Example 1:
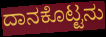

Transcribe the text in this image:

ದಾನಕೊಟ್ಟನು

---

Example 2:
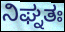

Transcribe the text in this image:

ನಿಘ್ನತಃ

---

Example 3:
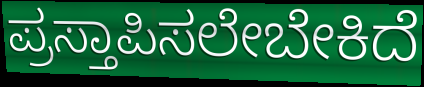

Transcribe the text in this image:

ಪ್ರಸ್ತಾಪಿಸಲೇಬೇಕಿದೆ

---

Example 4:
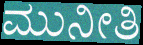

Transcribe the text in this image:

ಮುನೀತಿ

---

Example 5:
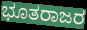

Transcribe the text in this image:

ಭೂತರಾಜರ